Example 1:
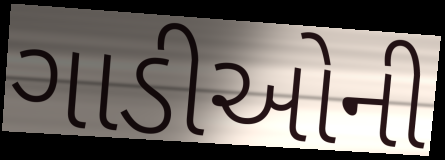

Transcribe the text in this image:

ગાડીઓની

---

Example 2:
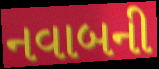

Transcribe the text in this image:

નવાબની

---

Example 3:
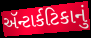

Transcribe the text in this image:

ઍન્ટાર્કટિકાનું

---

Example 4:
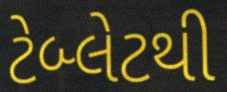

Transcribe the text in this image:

ટેબ્લેટથી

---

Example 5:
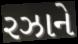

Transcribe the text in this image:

રઝાને